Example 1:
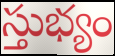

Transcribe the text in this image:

స్తుభ్యం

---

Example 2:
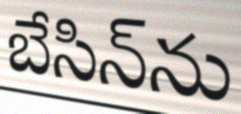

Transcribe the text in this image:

బేసిన్‌ను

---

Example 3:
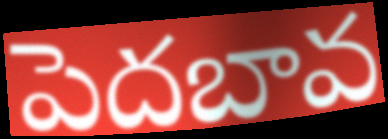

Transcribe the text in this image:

పెదబావ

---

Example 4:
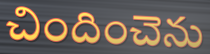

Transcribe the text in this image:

చిందించెను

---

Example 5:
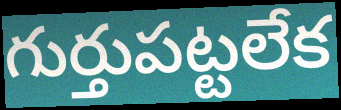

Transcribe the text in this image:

గుర్తుపట్టలేక